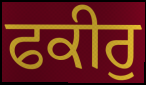
ਫਕੀਰੁ